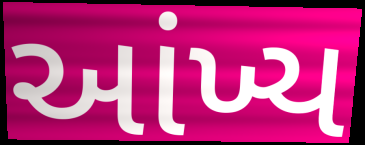
આંખ્ય